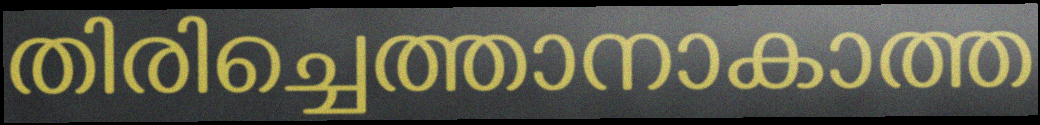
തിരിച്ചെത്താനാകാത്ത